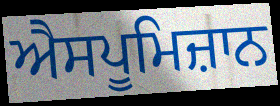
ਐਸਪੂਮਿਜ਼ਾਨ